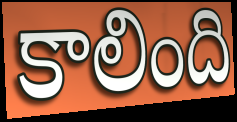
కాలింది